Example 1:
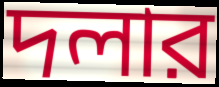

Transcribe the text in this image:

দলার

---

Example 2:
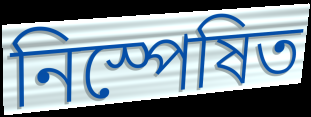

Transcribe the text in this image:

নিস্পেষিত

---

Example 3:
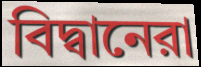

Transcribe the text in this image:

বিদ্বানেরা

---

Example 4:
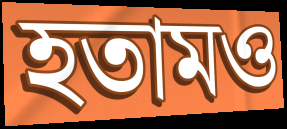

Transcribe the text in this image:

হতামও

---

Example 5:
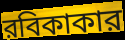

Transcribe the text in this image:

রবিকাকার